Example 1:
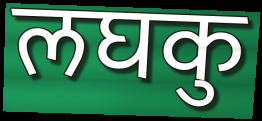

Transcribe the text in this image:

लघकु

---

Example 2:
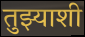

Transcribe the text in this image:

तुझ्याशी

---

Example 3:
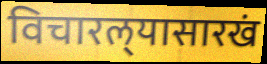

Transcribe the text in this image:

विचारल्यासारखं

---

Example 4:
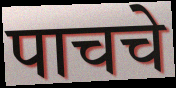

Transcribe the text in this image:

पाचचे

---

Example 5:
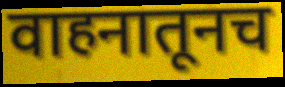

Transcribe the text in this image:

वाहनातूनच